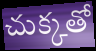
చుక్కతో